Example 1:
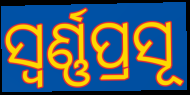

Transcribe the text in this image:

ସ୍ଵର୍ଣ୍ଣପ୍ରସୂ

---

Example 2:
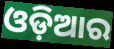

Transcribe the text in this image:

ଓଡ଼ିଆର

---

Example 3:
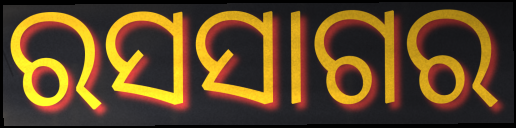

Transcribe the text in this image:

ରସସାଗର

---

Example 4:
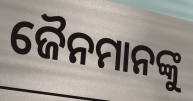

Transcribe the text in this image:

ଜୈନମାନଙ୍କୁ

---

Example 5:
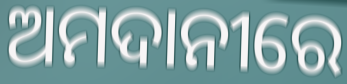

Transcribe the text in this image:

ଅମଦାନୀରେ